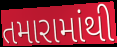
તમારામાંથી